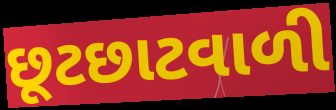
છૂટછાટવાળી